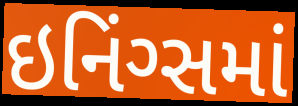
ઇનિંગ્સમાં